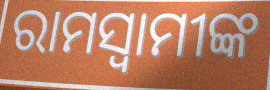
ରାମସ୍ୱାମୀଙ୍କ